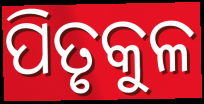
ପିତୃକୁଳ